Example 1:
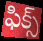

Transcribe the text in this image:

ఫిక్స్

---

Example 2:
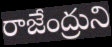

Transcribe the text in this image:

రాజేంద్రుని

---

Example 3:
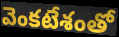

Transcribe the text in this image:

వెంకటేశంతో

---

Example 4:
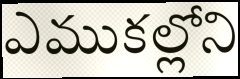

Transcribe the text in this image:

ఎముకల్లోని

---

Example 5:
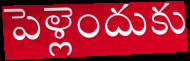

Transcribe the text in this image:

పెళ్లెందుకు